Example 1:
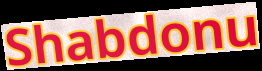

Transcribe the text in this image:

Shabdonu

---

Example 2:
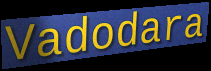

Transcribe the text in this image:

Vadodara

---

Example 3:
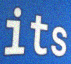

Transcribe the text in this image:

its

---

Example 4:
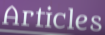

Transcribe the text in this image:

Articles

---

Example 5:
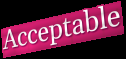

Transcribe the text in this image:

Acceptable